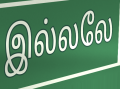
இல்லலே